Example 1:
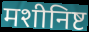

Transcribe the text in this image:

मशीनिष्ट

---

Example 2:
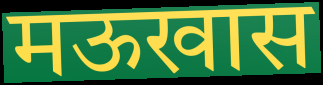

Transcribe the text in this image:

मऊखास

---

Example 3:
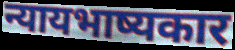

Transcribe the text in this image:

न्यायभाष्यकार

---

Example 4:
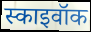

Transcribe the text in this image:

स्काइवॉक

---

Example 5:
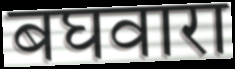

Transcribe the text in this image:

बघवारा